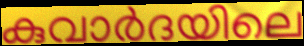
കുവാർദയിലെ